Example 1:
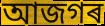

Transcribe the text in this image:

আজগৰ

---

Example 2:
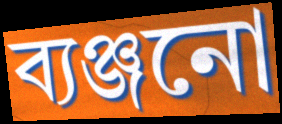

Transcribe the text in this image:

ব্যঞ্জনো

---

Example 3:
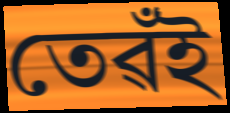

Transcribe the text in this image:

তেৱঁই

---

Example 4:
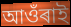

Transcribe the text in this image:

আওঁৰাই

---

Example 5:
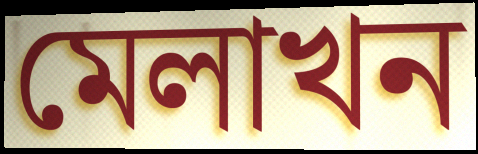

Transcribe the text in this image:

মেলাখন